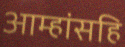
आम्हांसहि